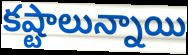
కష్టాలున్నాయి